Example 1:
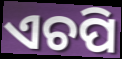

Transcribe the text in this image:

ଏଚପି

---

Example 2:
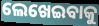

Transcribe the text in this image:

ଲେଖେଇବାକୁ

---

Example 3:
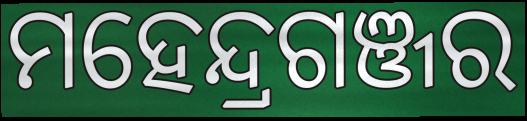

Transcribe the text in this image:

ମହେନ୍ଦ୍ରଗଞ୍ଜର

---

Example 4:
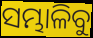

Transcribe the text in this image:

ସମ୍ଭାଳିବୁ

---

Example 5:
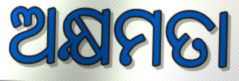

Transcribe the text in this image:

ଅକ୍ଷମତା